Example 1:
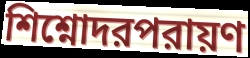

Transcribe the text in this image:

শিশ্নোদরপরায়ণ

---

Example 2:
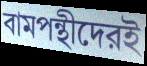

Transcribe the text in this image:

বামপন্থীদেরই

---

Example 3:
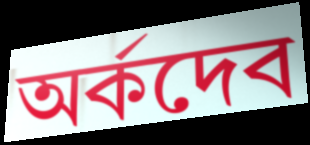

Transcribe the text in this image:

অর্কদেব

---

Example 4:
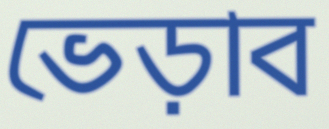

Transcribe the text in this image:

ভেড়াব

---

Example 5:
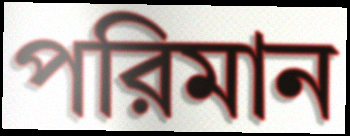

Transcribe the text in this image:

পরিমান